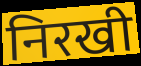
निरखी